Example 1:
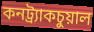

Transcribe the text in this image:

কনট্র্যাকচুয়াল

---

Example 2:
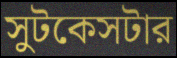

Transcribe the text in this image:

সুটকেসটার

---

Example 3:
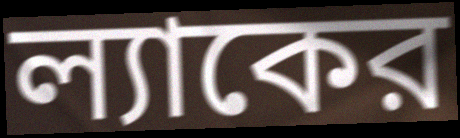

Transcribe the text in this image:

ল্যাকের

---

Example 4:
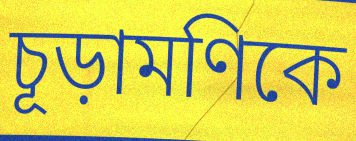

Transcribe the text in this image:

চূড়ামণিকে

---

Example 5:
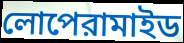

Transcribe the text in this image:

লোপেরামাইড